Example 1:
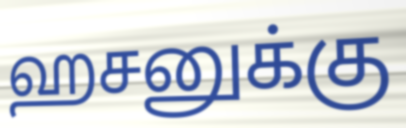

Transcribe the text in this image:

ஹசனுக்கு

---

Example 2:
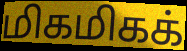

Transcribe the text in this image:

மிகமிகக்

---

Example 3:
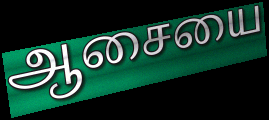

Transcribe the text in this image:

ஆசையை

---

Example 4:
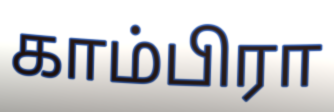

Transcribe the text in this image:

காம்பிரா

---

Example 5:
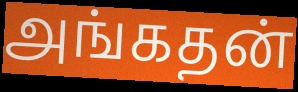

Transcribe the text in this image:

அங்கதன்